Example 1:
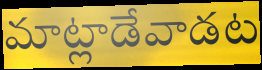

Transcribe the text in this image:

మాట్లాడేవాడట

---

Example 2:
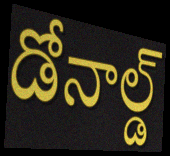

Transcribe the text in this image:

డోనాల్డ్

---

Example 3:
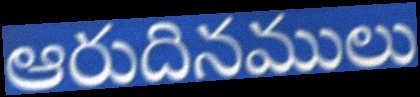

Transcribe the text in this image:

ఆరుదినములు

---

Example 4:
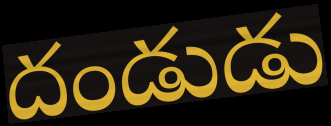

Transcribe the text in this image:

దండుడు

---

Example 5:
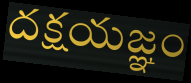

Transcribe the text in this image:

దక్షయజ్ఞం